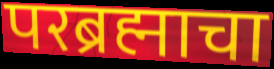
परब्रह्माचा